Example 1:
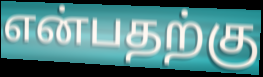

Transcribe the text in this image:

என்பதற்கு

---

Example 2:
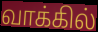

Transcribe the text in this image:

வாக்கில்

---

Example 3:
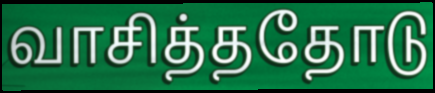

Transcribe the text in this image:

வாசித்ததோடு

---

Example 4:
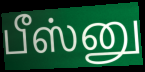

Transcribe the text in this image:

பீஸ்னு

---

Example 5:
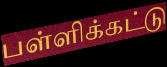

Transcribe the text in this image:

பள்ளிக்கட்டு